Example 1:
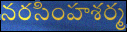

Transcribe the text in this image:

నరసింహశర్మ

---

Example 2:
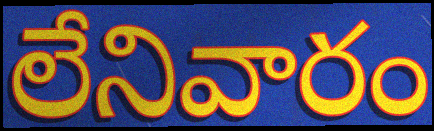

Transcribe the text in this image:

లేనివారం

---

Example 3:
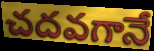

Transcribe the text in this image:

చదవగానే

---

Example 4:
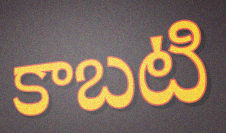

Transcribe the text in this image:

కాబటి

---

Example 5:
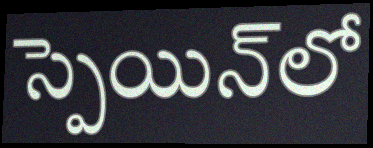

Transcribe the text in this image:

స్పెయిన్‌లో